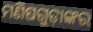
ମଣିଷଗୁଡ଼ାଙ୍କର